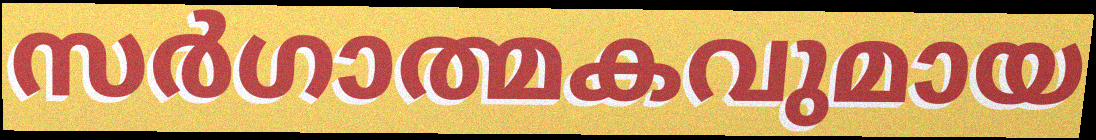
സർഗാത്മകവുമായ